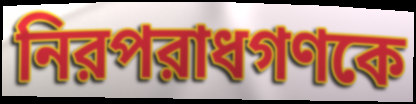
নিরপরাধগণকে